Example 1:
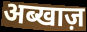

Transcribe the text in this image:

अब्खाज़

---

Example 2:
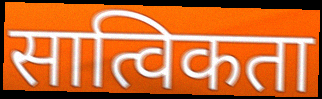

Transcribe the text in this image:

सात्विकता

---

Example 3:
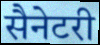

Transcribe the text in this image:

सैनेटरी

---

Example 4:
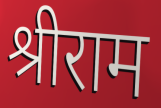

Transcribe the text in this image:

श्रीराम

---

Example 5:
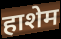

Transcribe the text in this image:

हाशेम